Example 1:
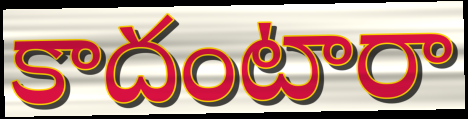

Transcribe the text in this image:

కాదంటారా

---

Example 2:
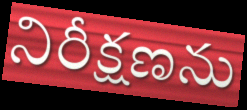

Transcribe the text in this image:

నిరీక్షణను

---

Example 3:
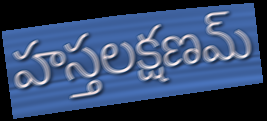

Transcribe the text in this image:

హస్తలక్షణమ్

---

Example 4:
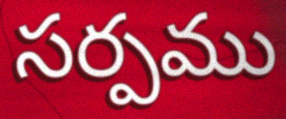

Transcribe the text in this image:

సర్పము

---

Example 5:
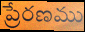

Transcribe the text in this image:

ప్రేరణము